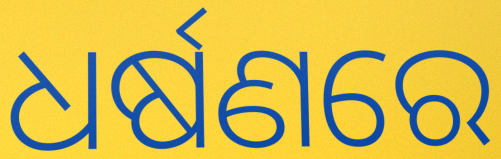
ଧର୍ଷଣରେ